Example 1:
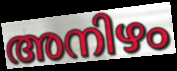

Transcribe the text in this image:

അനിഴം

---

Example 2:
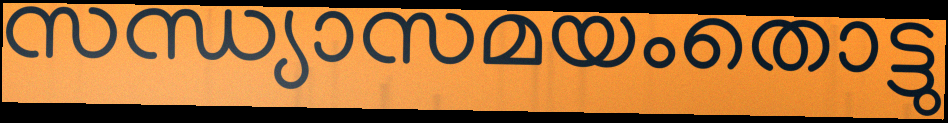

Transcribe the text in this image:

സന്ധ്യാസമയംതൊട്ടു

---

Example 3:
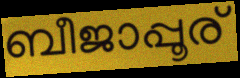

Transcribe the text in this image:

ബീജാപ്പൂര്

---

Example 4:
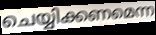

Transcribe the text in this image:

ചെയ്യിക്കണമെന്ന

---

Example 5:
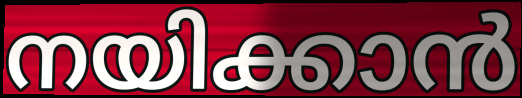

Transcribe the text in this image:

നയിക്കാൻ